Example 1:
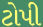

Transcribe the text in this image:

ટોપી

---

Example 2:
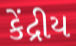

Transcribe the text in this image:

કેંદ્રીય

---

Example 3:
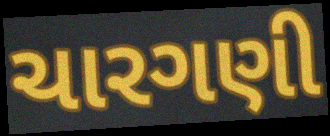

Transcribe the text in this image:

ચારગણી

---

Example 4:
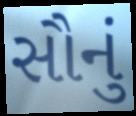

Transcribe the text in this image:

સૌનું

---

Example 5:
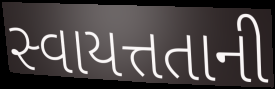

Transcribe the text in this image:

સ્વાયત્તતાની